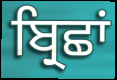
ਬ੍ਰਿਛਾਂ